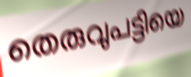
തെരുവുപട്ടിയെ